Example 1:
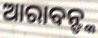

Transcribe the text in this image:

ଆରାବନ୍ଙ୍କ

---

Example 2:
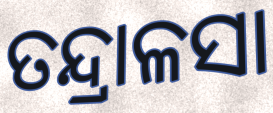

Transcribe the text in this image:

ତନ୍ଦ୍ରାଳସା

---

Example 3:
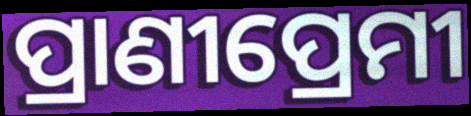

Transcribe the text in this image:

ପ୍ରାଣୀପ୍ରେମୀ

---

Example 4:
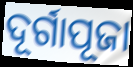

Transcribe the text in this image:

ଦୂର୍ଗାପୂଜା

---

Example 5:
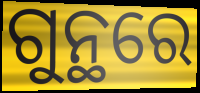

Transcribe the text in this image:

ଗୁନ୍ଥରେ